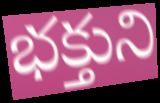
భక్తుని